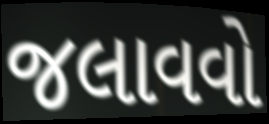
જલાવવો